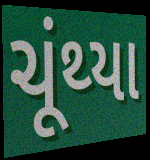
ચૂંથ્યા